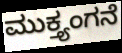
ಮುಕ್ತ್ಯಂಗನೆ